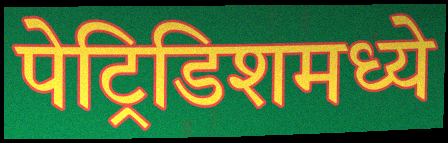
पेट्रिडिशमध्ये